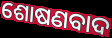
ଶୋଷଣବାଦ